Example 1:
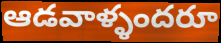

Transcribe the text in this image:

ఆడవాళ్ళందరూ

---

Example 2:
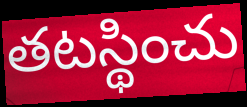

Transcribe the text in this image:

తటస్థించు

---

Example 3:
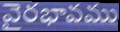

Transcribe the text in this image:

వైరభావము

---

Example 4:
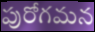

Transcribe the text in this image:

పురోగమన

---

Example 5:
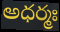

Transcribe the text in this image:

అధర్మః